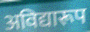
अविद्यारूप